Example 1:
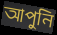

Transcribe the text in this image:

আপুনি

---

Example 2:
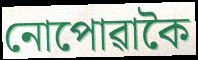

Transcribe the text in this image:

নোপোৱাকৈ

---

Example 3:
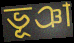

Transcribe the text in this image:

ভূঞা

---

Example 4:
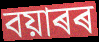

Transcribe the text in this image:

বয়াৰৰ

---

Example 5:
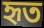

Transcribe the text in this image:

হৃত